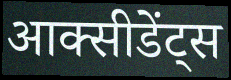
आक्सीडेंट्स